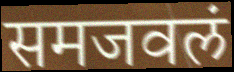
समजवलं